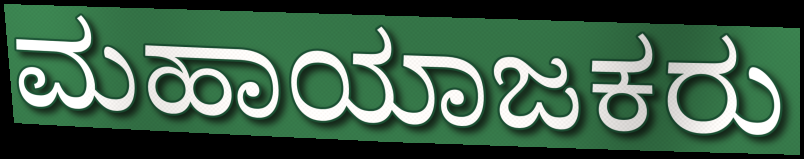
ಮಹಾಯಾಜಕರು